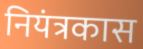
नियंत्रकास